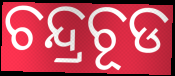
ଚନ୍ଦ୍ରଚୂଡ